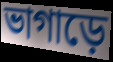
ভাগাড়ে